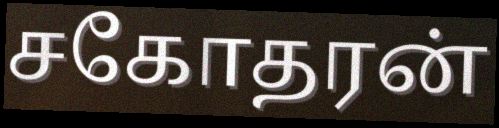
சகோதரன்